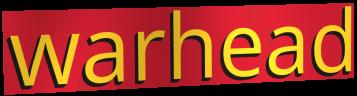
warhead